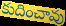
కుదించావు